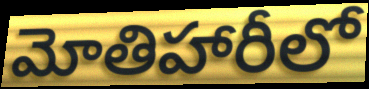
మోతిహారీలో